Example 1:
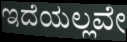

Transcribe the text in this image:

ಇದೆಯಲ್ಲವೇ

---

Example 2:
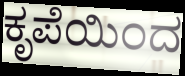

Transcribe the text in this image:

ಕೃಪೆಯಿಂದ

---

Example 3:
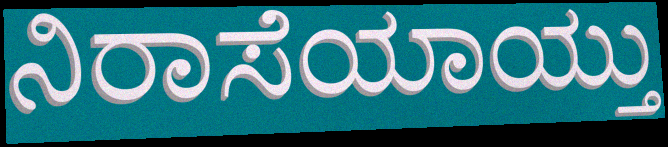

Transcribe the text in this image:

ನಿರಾಸೆಯಾಯ್ತು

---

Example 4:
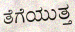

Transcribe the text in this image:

ತೆಗೆಯುತ್ತ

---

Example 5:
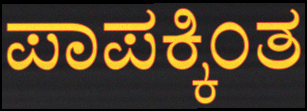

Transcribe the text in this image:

ಪಾಪಕ್ಕಿಂತ